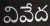
వివేద